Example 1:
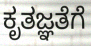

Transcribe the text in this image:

ಕೃತಜ್ಞತೆಗೆ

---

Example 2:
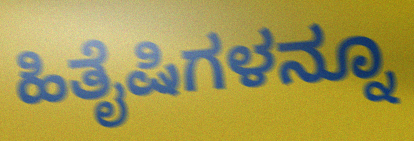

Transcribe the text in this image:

ಹಿತೈಷಿಗಳನ್ನೂ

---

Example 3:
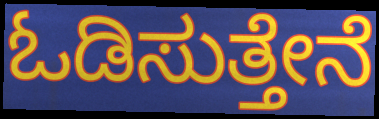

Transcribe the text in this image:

ಓಡಿಸುತ್ತೇನೆ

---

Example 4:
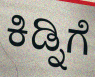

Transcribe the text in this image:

ಕಿಡ್ನಿಗೆ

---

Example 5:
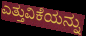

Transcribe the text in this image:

ಎತ್ತುವಿಕೆಯನ್ನು